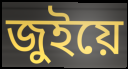
জুইয়ে